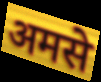
अमसे